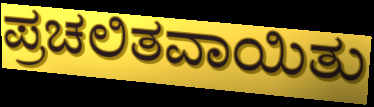
ಪ್ರಚಲಿತವಾಯಿತು